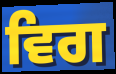
ਵਿਗ